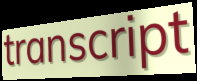
transcript